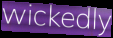
wickedly